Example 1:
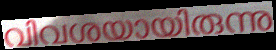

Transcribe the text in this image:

വിവശയായിരുന്നു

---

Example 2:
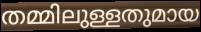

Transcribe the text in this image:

തമ്മിലുള്ളതുമായ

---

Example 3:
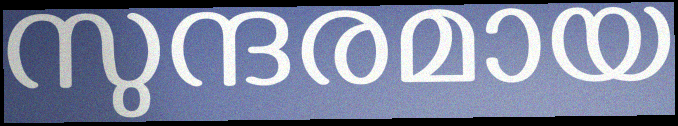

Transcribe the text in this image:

സുന്ദരമായ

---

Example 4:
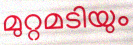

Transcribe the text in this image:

മുറ്റമടിയും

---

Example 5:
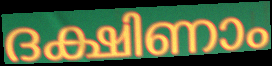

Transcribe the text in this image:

ദക്ഷിണാം